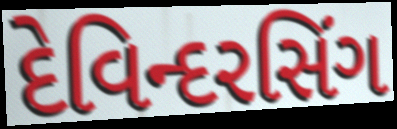
દેવિન્દરસિંગ